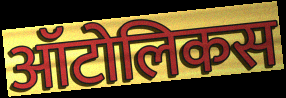
ऑटोलिकस